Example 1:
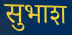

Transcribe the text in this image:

सुभाश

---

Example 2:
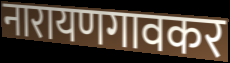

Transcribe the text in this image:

नारायणगावकर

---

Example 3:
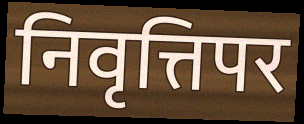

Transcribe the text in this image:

निवृत्तिपर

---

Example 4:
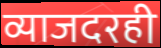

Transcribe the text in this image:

व्याजदरही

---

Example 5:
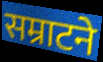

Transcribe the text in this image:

सम्राटने